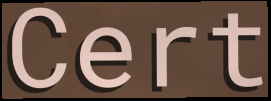
Cert